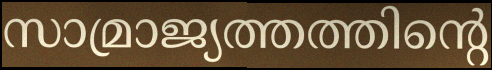
സാമ്രാജ്യത്തത്തിന്റെ